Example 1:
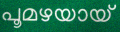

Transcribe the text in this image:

പൂമഴയായ്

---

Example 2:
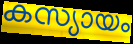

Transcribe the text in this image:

കസ്യായം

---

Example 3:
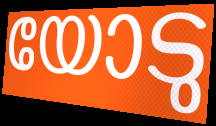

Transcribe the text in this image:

യോടു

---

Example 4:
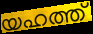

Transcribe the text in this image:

യഹത്ത്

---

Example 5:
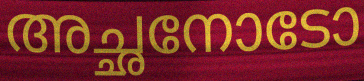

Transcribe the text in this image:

അച്ഛനോടോ